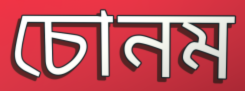
চোনম